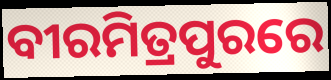
ବୀରମିତ୍ରପୁରରେ